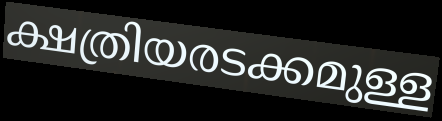
ക്ഷത്രിയരടക്കമുള്ള